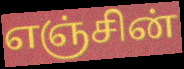
எஞ்சின்